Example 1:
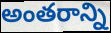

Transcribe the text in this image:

అంతరాన్ని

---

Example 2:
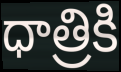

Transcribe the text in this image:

ధాత్రికి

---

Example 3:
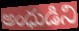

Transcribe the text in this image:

అంధుడిని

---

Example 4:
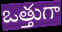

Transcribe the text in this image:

ఒత్తుగా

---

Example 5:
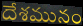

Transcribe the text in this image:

దేశమునం